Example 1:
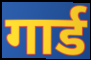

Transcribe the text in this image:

गार्ड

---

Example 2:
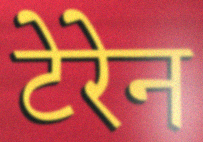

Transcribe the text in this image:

टेरेन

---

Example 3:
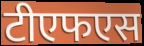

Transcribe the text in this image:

टीएफएस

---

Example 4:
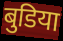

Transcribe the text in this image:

बुडिया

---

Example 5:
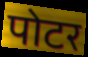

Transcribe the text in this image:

पोटर